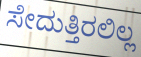
ಸೇದುತ್ತಿರಲಿಲ್ಲ